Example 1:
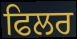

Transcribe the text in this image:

ਫਿਲਰ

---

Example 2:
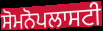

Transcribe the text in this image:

ਸੋਮਨੋਪਲਾਸਟੀ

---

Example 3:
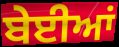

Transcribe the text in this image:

ਬੇਈਆਂ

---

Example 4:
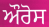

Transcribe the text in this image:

ਔਰੋਸ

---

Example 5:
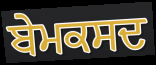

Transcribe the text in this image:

ਬੇਮਕਸਦ